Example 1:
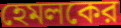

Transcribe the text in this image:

হেমলকের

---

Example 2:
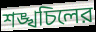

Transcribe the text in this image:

শঙ্খচিলের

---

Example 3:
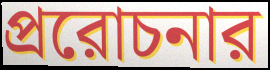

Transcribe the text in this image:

প্ররোচনার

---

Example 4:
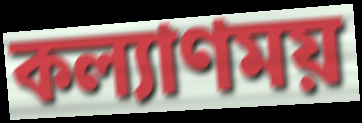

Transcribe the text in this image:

কল্যাণময়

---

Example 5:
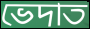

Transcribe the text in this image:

ভেদাত